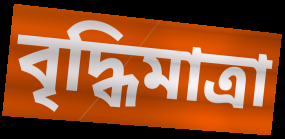
বৃদ্ধিমাত্রা